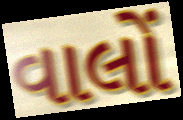
વાલોં